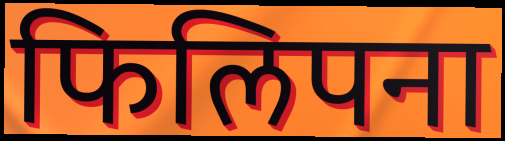
फिलिपना